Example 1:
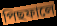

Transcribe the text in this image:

পিছফালে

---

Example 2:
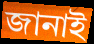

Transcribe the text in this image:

জানাই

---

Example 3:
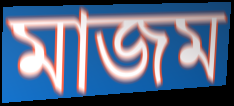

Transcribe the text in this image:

মাজম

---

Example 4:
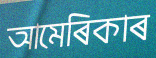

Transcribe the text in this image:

আমেৰিকাৰ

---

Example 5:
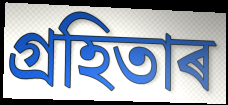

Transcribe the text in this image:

গ্ৰহিতাৰ